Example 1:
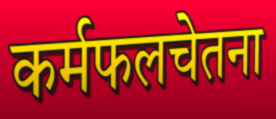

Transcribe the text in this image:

कर्मफलचेतना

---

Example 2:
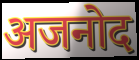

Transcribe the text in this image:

अजनोद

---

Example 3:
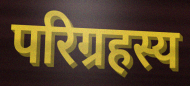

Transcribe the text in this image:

परिग्रहस्य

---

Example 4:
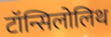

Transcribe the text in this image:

टॉन्सिलोलिथ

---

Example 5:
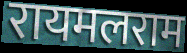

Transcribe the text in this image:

रायमलराम